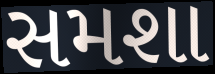
સમશા